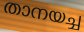
താനയച്ച